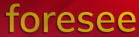
foresee